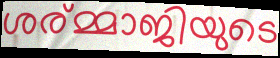
ശര്മ്മാജിയുടെ